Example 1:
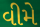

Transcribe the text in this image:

વીમે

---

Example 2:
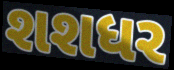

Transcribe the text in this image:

શશધર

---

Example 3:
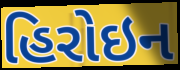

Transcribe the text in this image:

હિરોઇન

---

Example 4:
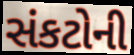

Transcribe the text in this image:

સંકટોની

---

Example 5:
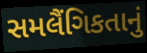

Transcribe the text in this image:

સમલૈંગિકતાનું